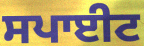
ਸਪਾਈਟ